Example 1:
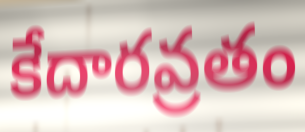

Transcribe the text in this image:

కేదారవ్రతం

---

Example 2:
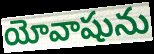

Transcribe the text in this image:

యోవాషును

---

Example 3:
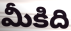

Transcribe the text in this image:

మీకిది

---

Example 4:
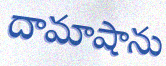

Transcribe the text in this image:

దామాషాను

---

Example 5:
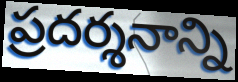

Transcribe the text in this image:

ప్రదర్శనాన్ని